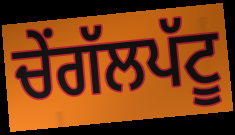
ਚੇਂਗੱਲਪੱਟੂ